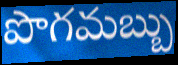
పొగమబ్బు